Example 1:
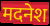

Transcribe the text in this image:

मदनेश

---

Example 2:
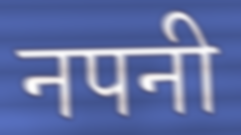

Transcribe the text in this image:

नपनी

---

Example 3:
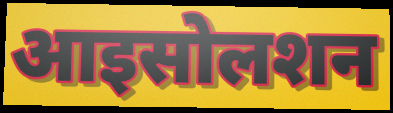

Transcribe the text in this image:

आइसोलशन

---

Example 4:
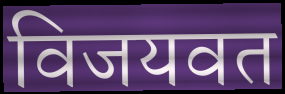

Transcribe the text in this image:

विजयवत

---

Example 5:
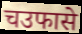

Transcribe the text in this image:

चउफासे